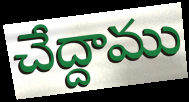
చేద్దాము